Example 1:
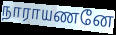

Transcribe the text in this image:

நாராயணனே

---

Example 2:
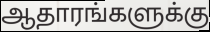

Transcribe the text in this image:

ஆதாரங்களுக்கு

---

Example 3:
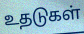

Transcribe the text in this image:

உதடுகள்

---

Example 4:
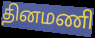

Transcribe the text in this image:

தினமணி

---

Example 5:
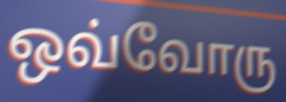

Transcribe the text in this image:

ஒவ்வோரு